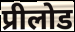
प्रीलोड